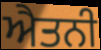
ਐਤਨੀ